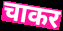
चाकर